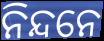
ନିନ୍ଦନେ